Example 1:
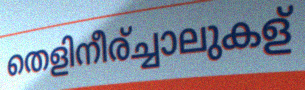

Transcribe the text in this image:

തെളിനീര്ച്ചാലുകള്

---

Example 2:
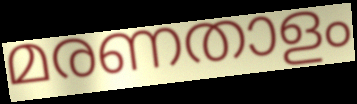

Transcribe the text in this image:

മരണതാളം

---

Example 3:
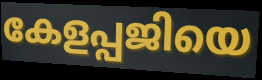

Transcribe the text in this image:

കേളപ്പജിയെ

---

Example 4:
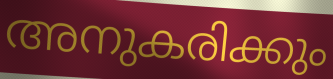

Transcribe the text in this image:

അനുകരിക്കും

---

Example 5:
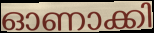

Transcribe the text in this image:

ഓണാക്കി